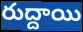
రుద్దాయి